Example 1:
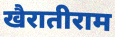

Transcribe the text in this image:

खैरातीराम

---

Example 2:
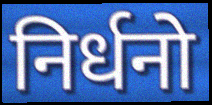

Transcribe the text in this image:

निर्धनो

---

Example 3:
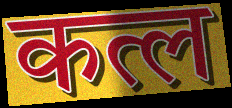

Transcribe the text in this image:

कत्ल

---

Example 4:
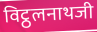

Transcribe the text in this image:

विट्ठलनाथजी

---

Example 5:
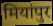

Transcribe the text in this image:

मियांपुर